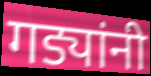
गड्यांनी